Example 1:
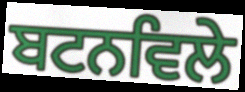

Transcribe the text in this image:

ਬਟਨਵਿਲੇ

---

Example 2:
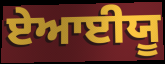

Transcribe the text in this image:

ਏਆਈਯੂ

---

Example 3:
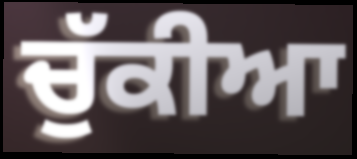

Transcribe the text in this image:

ਚੁੱਕੀਆ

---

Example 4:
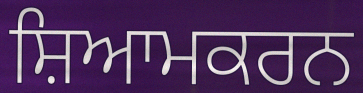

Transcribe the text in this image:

ਸ਼ਿਆਮਕਰਨ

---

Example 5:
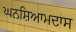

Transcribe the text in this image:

ਘਨਸ਼ਿਆਮਦਾਸ